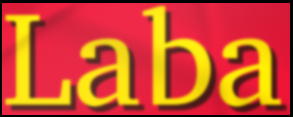
Laba